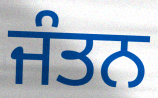
ਜੰਤਨ